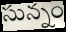
సున్నం